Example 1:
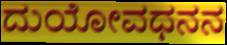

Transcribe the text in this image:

ದುಯೋವಧನನ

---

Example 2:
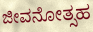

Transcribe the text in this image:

ಜೀವನೋತ್ಸಹ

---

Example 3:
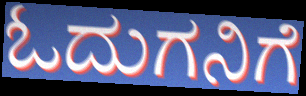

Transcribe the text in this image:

ಓದುಗನಿಗೆ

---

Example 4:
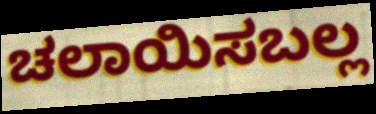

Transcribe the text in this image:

ಚಲಾಯಿಸಬಲ್ಲ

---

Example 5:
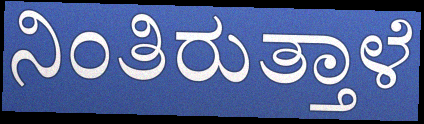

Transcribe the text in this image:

ನಿಂತಿರುತ್ತಾಳೆ